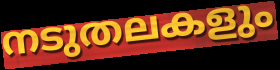
നടുതലകളും